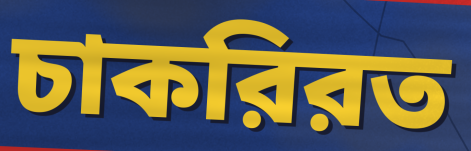
চাকরিরত